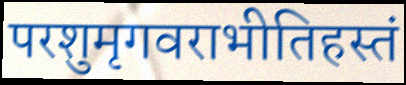
परशुमृगवराभीतिहस्तं